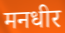
मनधीर